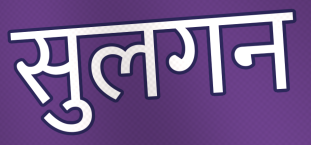
सुलगन